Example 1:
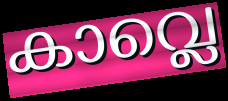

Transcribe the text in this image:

കാവ്ലെ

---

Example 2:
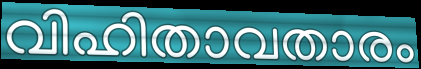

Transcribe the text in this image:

വിഹിതാവതാരം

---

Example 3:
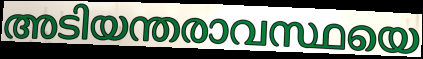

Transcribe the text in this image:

അടിയന്തരാവസ്ഥയെ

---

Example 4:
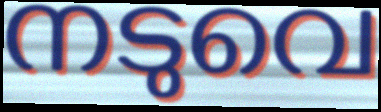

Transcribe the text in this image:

നടുവെ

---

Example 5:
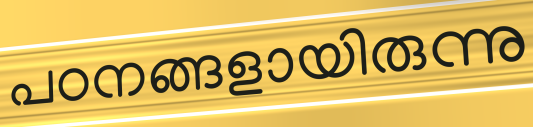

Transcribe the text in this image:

പഠനങ്ങളായിരുന്നു